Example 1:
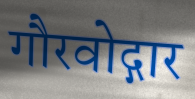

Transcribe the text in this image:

गौरवोद्गार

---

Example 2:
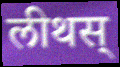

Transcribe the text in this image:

लीथस्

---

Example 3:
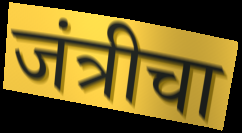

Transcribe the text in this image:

जंत्रीचा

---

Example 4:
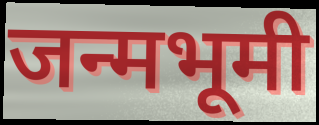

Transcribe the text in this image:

जन्मभूमी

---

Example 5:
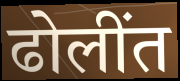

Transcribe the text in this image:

ढोलींत